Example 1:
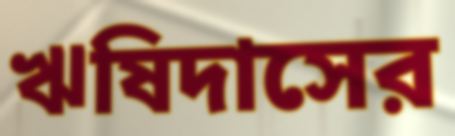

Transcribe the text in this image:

ঋষিদাসের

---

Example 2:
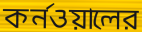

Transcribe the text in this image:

কর্নওয়ালের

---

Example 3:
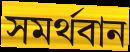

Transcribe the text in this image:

সমর্থবান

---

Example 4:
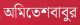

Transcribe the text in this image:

অমিতেশবাবুর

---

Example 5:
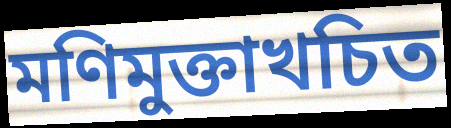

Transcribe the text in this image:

মণিমুক্তাখচিত